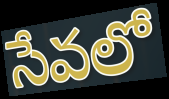
సేవలో